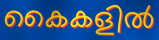
കൈകളിൽ